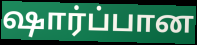
ஷார்ப்பான